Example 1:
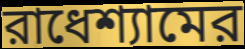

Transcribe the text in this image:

রাধেশ্যামের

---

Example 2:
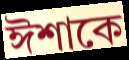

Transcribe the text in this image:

ঈশাকে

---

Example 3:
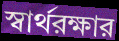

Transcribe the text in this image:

স্বার্থরক্ষার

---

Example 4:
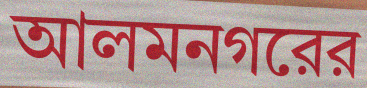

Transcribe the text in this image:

আলমনগরের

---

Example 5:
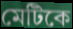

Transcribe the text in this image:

মেটিকে